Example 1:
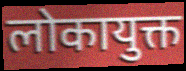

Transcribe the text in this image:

लोकायुक्त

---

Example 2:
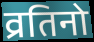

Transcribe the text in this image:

व्रतिनो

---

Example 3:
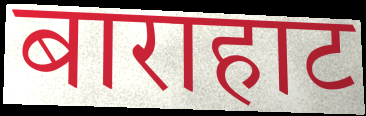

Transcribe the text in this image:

बाराहाट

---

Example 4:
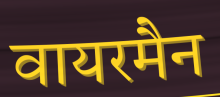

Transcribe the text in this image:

वायरमैन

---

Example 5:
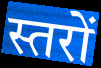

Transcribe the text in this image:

स्तरों